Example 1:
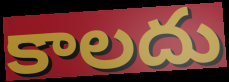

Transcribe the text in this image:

కాలదు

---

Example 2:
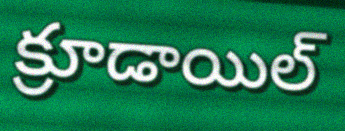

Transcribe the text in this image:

క్రూడాయిల్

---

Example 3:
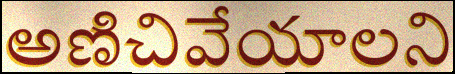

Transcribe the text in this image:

అణిచివేయాలని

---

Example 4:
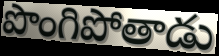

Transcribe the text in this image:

పొంగిపోతాడు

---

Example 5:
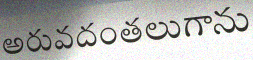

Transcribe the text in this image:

అరువదంతలుగాను